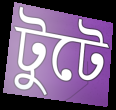
টুটে